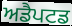
ਅਡੈਪਟਡ